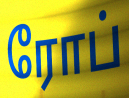
ரோப்